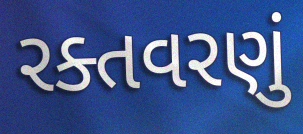
રક્તવરણું